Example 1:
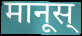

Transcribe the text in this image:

मानूस्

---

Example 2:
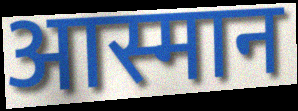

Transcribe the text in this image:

आस्मान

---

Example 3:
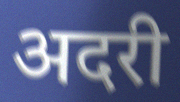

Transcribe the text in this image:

अदरी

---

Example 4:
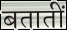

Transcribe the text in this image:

बतातीं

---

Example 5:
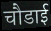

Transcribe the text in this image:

चौडाई